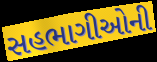
સહભાગીઓની